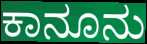
ಕಾನೂನು